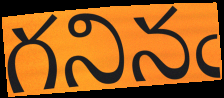
గనినఁ